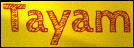
Tayam